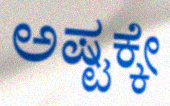
ಅಷ್ಟಕ್ಕೇ